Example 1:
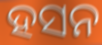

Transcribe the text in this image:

ହସନ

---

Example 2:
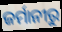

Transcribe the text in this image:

ଜର୍ମାନୀରୁ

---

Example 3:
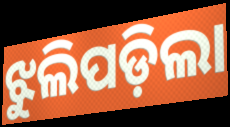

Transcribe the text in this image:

ଝୁଲିପଡ଼ିଲା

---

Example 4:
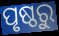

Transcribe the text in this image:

ପୃଷ୍ଠରୁ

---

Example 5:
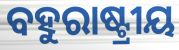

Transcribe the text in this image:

ବହୁରାଷ୍ଟ୍ରୀୟ